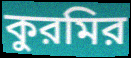
কুরমির